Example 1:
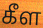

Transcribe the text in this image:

கீள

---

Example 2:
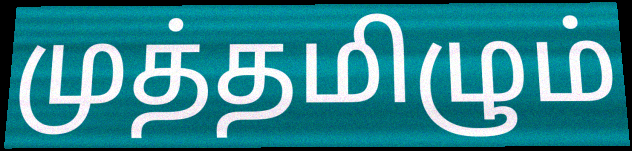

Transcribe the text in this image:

முத்தமிழும்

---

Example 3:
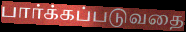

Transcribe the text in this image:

பார்க்கப்படுவதை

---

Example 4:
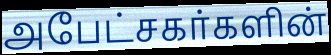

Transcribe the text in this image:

அபேட்சகர்களின்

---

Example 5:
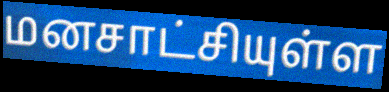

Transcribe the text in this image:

மனசாட்சியுள்ள